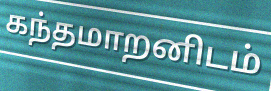
கந்தமாறனிடம்